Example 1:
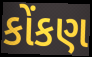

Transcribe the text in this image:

કોંકણ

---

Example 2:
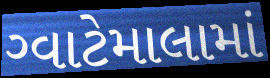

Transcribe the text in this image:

ગ્વાટેમાલામાં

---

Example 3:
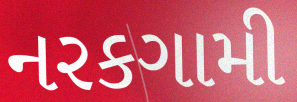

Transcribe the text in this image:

નરકગામી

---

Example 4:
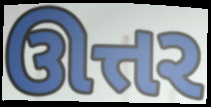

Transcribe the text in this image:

ઊત્તર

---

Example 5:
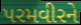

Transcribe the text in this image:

પરમવીરને